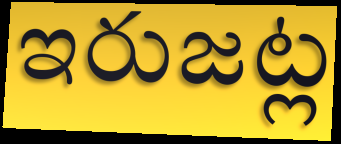
ఇరుజట్ల